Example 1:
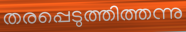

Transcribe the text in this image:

തരപ്പെടുത്തിത്തന്നു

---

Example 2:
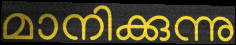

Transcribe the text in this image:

മാനിക്കുന്നു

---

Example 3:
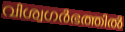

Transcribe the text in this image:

വിശ്വഗർഭത്തിൽ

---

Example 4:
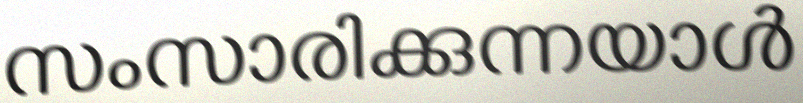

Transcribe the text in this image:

സംസാരിക്കുന്നയാൾ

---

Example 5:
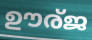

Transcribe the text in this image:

ഊര്ജ